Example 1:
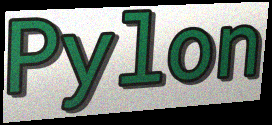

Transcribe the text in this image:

Pylon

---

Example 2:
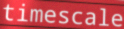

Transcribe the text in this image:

timescale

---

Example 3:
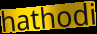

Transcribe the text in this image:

hathodi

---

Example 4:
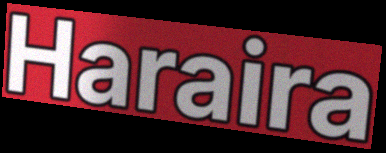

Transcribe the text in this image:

Haraira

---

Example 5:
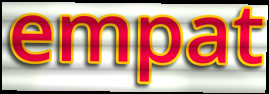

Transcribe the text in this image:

empat